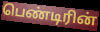
பெண்டிரின்